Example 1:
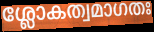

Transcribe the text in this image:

ശ്ലോകത്വമാഗതഃ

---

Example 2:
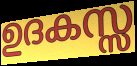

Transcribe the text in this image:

ഉദകസ്സ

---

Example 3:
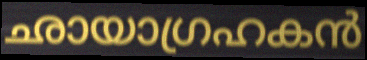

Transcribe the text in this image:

ഛായാഗ്രഹകൻ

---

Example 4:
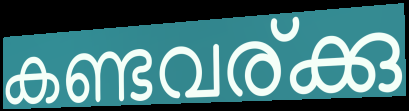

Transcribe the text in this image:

കണ്ടവര്ക്കു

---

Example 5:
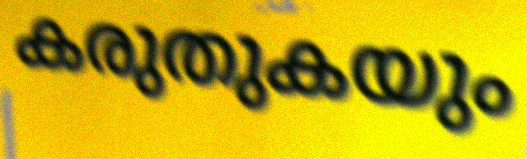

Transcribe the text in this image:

കരുതുകയും